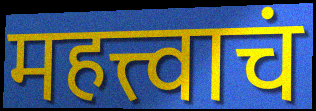
महत्त्वाचं